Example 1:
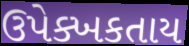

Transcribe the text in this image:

ઉપેક્ખકતાય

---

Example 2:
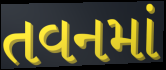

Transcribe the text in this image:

તવનમાં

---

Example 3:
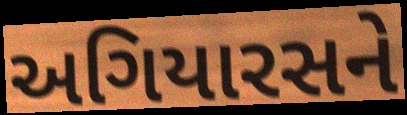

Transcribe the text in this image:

અગિયારસને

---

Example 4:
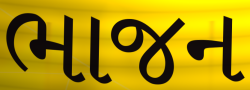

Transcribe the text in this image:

ભાજન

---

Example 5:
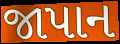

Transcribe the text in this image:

જાપાન